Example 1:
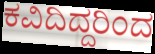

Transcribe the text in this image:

ಕವಿದಿದ್ದರಿಂದ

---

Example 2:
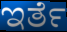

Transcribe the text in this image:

ಇರ್ತೆ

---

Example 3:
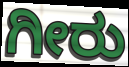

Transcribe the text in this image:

ಗೀರು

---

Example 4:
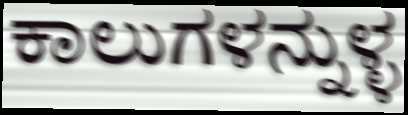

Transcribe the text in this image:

ಕಾಲುಗಳನ್ನುಳ್ಳ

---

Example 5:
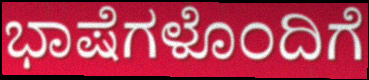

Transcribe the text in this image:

ಭಾಷೆಗಳೊಂದಿಗೆ